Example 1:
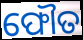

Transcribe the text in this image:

ଫୌତ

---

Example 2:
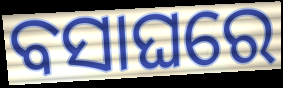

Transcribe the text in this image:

ବସାଘରେ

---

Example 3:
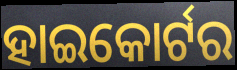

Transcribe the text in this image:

ହାଇକୋର୍ଟର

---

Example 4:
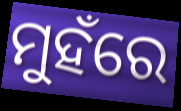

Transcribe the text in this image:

ମୁହଁରେ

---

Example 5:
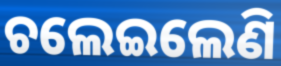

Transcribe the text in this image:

ଚଲେଇଲେଣି